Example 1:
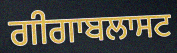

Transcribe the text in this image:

ਗੀਗਾਬਲਾਸਟ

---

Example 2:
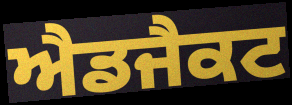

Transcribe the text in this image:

ਐਡਜੈਕਟ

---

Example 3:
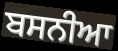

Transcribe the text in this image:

ਬਸਨੀਆ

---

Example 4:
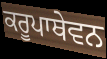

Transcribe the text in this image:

ਕਰੂਪਾਥੇਵਨ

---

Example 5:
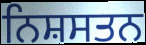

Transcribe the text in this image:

ਨਿਸ਼ਸਤਨ